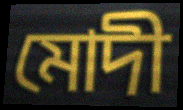
মোদী